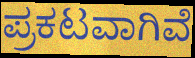
ಪ್ರಕಟವಾಗಿವೆ